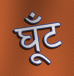
घूँट